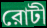
রোটী